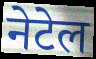
नेटेल